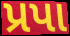
પ્રપા